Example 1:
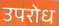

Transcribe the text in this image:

उपरोध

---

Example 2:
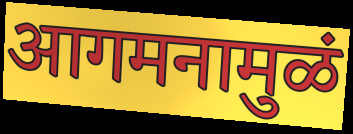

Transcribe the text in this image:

आगमनामुळं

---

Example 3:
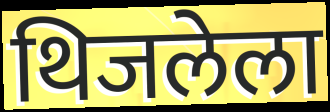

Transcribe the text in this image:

थिजलेला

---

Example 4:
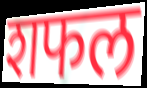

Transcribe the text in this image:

शफल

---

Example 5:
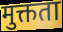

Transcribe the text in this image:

मुक्तता